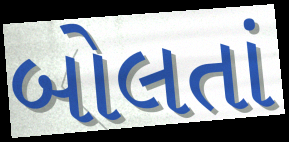
બોલતાં